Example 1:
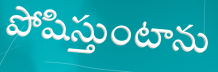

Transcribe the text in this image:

పోషిస్తుంటాను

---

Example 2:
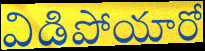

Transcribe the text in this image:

విడిపోయారో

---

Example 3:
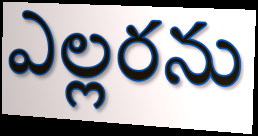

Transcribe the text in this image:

ఎల్లరను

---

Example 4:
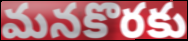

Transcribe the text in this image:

మనకొరకు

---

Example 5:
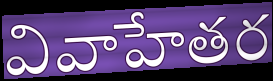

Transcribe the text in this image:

వివాహేతర